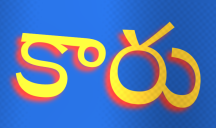
కారు